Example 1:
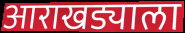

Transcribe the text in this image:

आराखड्याला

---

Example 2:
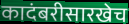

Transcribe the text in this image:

कादंबरीसारखेच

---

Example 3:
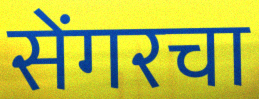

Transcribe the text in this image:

सेंगरचा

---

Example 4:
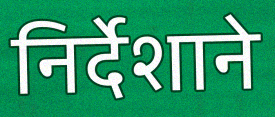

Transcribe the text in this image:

निर्देशाने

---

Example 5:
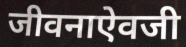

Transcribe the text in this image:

जीवनाऐवजी